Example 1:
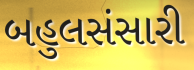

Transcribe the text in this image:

બહુલસંસારી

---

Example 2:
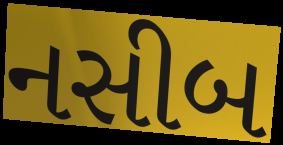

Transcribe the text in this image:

નસીબ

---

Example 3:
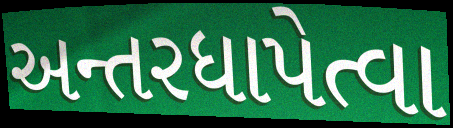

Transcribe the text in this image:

અન્તરધાપેત્વા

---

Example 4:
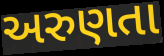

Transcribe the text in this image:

અરુણતા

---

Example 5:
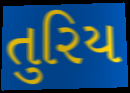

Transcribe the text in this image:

તુરિય